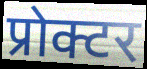
प्रोक्टर